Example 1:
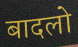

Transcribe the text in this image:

बादलो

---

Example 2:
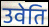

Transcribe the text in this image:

उवेति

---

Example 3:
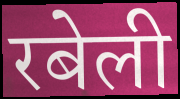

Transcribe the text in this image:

रबेली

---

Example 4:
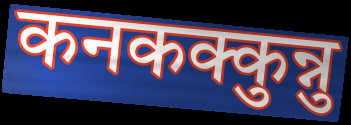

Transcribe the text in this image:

कनकक्कुन्नु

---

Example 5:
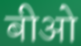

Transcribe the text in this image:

बीओ